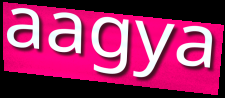
aagya